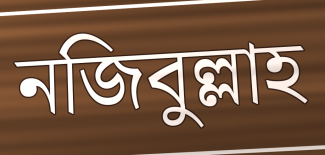
নজিবুল্লাহ